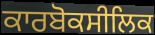
ਕਾਰਬੋਕਸੀਲਿਕ